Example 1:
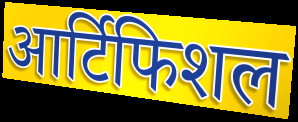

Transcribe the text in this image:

आर्टिफिशल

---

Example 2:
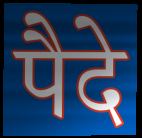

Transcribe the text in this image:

पैदे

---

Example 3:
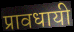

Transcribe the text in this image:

प्रावधायी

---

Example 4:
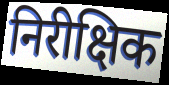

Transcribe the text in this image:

निरीक्षिक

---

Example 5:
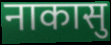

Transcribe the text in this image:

नाकासु